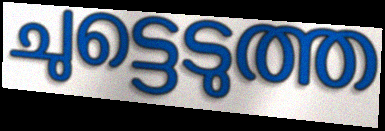
ചുട്ടെടുത്ത